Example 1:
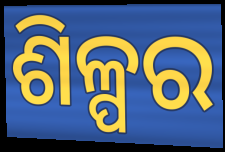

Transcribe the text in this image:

ଶିଳ୍ପର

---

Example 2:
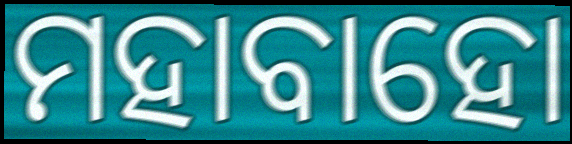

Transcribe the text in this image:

ମହାବାହୋ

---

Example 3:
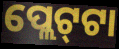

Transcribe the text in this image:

ପ୍ଲେଟ୍‍ଟା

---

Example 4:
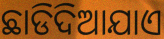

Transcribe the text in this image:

ଛାଡିଦିଆଯାଏ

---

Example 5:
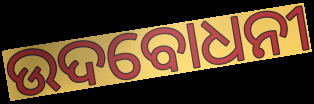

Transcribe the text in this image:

ଉଦବୋଧନୀ